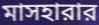
মাসহারার